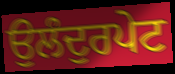
ਉਲੰਦੁਰਪੇਟ